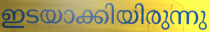
ഇടയാക്കിയിരുന്നു